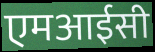
एमआईसी